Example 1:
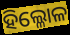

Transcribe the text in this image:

ହିଲ୍ଳୋଳ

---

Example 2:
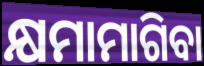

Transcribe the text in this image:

କ୍ଷମାମାଗିବା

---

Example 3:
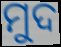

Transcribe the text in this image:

ମୁଦ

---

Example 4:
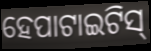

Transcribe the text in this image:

ହେପାଟାଇଟିସ୍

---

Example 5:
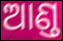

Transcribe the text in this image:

ଆଣ୍ଡ